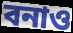
বনাও